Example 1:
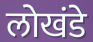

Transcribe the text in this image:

लोखंडे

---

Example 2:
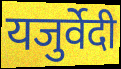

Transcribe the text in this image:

यजुर्वेदी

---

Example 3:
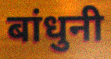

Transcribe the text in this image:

बांधुनी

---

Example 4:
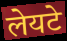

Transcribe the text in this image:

लेयटे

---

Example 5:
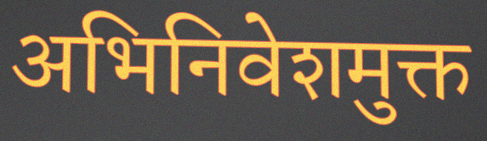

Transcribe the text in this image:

अभिनिवेशमुक्त